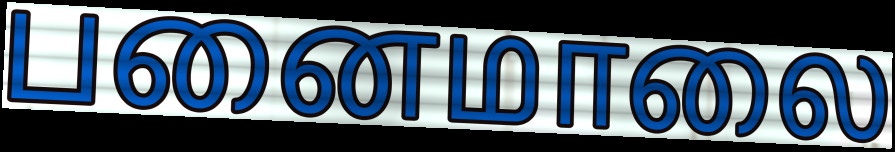
பனைமாலை